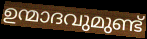
ഉന്മാദവുമുണ്ട്